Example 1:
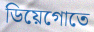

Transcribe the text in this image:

ডিয়েগোতে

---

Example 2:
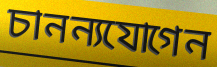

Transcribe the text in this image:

চানন্যযোগেন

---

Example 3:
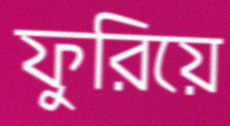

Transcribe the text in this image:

ফুরিয়ে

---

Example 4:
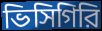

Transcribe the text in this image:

ভিসিগিরি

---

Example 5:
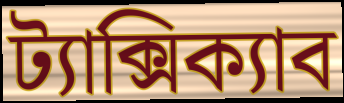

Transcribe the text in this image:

ট্যাক্সিক্যাব